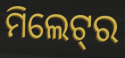
ମିଲେଟ୍‌ର